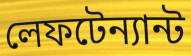
লেফটেন্যান্ট